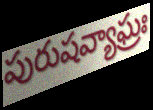
పురుషవ్యాఘ్రః